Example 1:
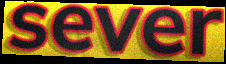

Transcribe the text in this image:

sever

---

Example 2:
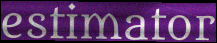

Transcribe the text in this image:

estimator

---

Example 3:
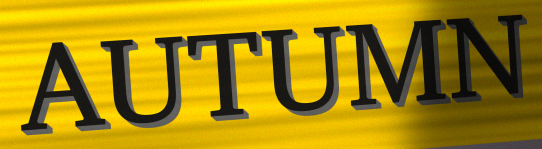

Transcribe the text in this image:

AUTUMN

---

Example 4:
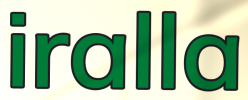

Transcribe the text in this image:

iralla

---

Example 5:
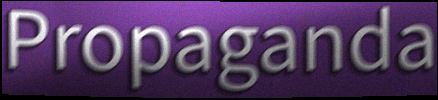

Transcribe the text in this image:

Propaganda